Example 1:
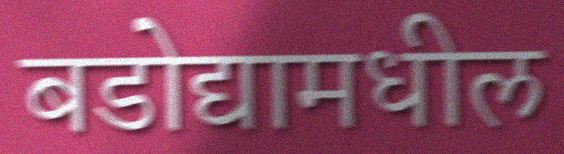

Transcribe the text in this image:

बडोद्यामधील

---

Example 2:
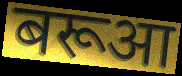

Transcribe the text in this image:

बरूआ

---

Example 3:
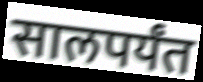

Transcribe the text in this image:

सालपर्यंत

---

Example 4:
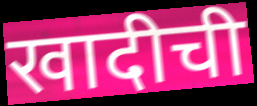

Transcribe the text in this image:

खादीची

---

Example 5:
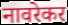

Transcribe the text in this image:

नावरेकर